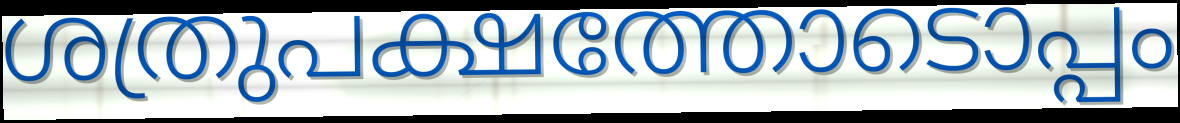
ശത്രുപക്ഷത്തോടൊപ്പം